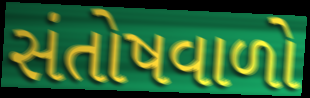
સંતોષવાળો